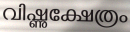
വിഷ്ണുക്ഷേത്രം